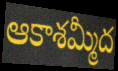
ఆకాశమ్మీద